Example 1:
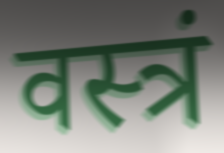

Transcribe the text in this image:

वस्त्रं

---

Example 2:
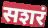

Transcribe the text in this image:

सशरं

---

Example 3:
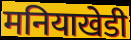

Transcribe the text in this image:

मनियाखेडी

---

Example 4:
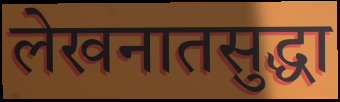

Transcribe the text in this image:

लेखनातसुद्धा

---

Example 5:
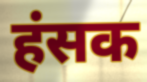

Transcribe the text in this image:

हंसक